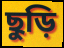
ছুড়ি